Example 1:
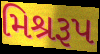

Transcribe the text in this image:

મિશ્રરૂપ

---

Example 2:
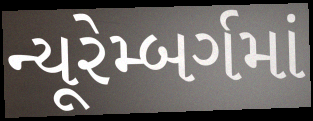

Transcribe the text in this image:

ન્યૂરેમ્બર્ગમાં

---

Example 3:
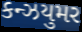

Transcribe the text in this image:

કન્ઝયુમર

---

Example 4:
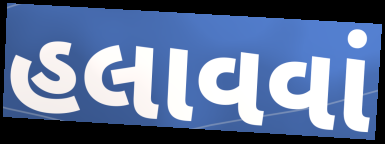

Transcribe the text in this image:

હલાવવાં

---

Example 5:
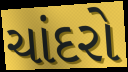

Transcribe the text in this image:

ચાંદરો